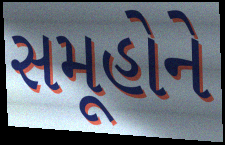
સમૂહોને